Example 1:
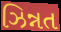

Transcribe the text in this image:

ઝિન્નત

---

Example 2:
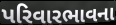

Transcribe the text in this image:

પરિવારભાવના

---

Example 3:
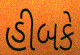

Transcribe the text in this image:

હીબકે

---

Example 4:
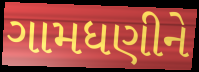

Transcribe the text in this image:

ગામધણીને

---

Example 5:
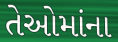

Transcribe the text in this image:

તેઓમાંના